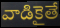
వాడికైతే